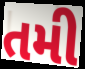
તમી